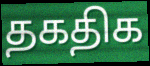
தகதிக